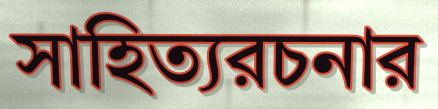
সাহিত্যরচনার